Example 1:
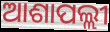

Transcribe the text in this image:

ଆଶାପଲ୍ଲୀ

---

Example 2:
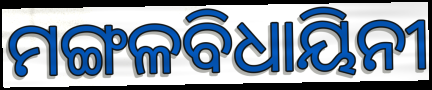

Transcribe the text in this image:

ମଙ୍ଗଳବିଧାୟିନୀ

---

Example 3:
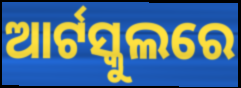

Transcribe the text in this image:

ଆର୍ଟସ୍କୁଲରେ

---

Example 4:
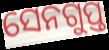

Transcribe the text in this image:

ସେନଗୁପ୍ତ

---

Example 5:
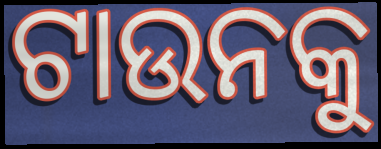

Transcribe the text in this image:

ଟାଉନକୁ